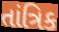
તાંત્રિક